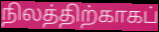
நிலத்திற்காகப்